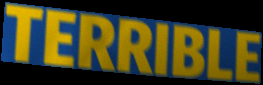
TERRIBLE